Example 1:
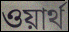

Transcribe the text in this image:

ওয়ার্থ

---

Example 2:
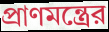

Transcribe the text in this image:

প্রাণমন্ত্রের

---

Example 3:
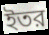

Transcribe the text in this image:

ইতর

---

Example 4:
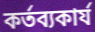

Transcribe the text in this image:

কর্তব্যকার্য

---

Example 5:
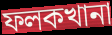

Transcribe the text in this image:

ফলকখানা